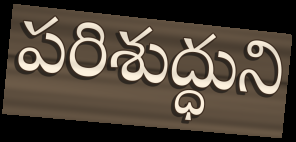
పరిశుద్ధుని